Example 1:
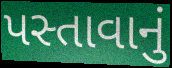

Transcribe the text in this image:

પસ્તાવાનું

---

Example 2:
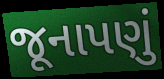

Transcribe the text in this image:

જૂનાપણું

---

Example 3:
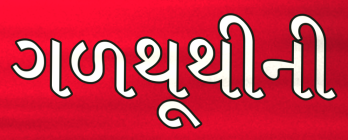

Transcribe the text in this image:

ગળથૂથીની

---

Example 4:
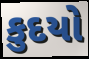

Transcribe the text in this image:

કુદયો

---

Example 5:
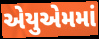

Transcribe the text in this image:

એયુએમમાં